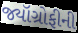
જ્યૉગ્રોફીની